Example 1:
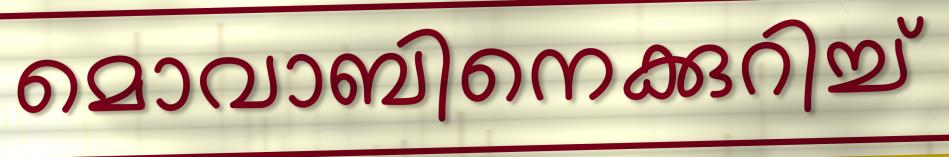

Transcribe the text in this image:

മൊവാബിനെക്കുറിച്ച്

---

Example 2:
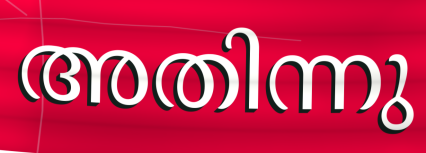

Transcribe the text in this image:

അതിന്നു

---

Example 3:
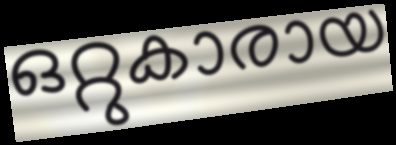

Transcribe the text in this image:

ഒറ്റുകാരായ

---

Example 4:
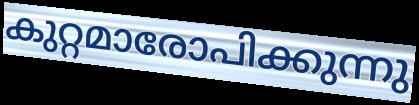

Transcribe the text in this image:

കുറ്റമാരോപിക്കുന്നു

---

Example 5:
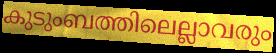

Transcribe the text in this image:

കുടുംബത്തിലെല്ലാവരും